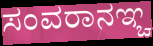
ಸಂವರಾನಞ್ಚ